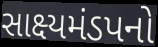
સાક્ષ્યમંડપનો